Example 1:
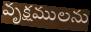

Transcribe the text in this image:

వృక్షములను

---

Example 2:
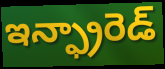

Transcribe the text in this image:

ఇన్ఫ్రారెడ్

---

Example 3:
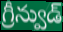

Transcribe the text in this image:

గ్రీన్వుడ్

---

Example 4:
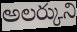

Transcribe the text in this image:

అలర్కుని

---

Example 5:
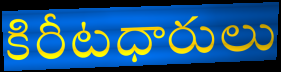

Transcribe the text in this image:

కిరీటధారులు